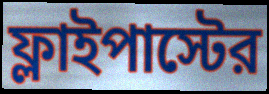
ফ্লাইপাস্টের